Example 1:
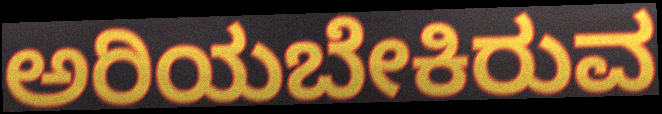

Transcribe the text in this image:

ಅರಿಯಬೇಕಿರುವ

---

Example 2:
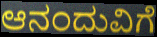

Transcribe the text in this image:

ಆನಂದುವಿಗೆ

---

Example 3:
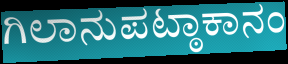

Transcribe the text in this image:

ಗಿಲಾನುಪಟ್ಠಾಕಾನಂ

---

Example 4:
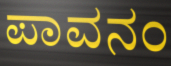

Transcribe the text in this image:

ಪಾವನಂ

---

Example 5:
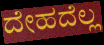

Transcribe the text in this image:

ದೇಹದೆಲ್ಲ